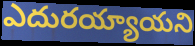
ఎదురయ్యాయని